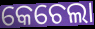
କେଚେଲା